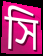
সি